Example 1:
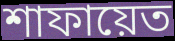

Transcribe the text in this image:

শাফায়েত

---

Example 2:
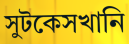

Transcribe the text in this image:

সুটকেসখানি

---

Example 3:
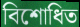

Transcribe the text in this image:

বিশোধিত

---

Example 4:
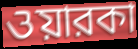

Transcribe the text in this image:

ওয়ারকা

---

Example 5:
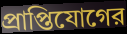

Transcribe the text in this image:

প্রাপ্তিযোগের